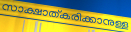
സാക്ഷാത്കരിക്കാനുള്ള